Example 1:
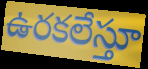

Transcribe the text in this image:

ఉరకలేస్తూ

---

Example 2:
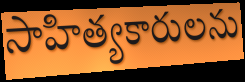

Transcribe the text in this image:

సాహిత్యకారులను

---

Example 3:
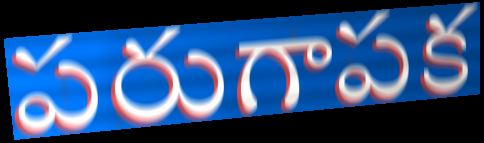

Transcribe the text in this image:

పరుగాపక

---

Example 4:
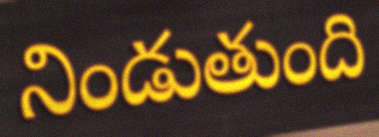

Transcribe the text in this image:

నిండుతుంది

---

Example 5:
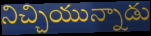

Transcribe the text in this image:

నిచ్చియున్నాడు